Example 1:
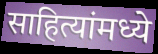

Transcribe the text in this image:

साहित्यांमध्ये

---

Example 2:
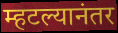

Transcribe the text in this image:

म्हटल्यानंतर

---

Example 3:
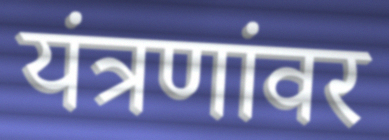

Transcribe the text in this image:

यंत्रणांवर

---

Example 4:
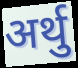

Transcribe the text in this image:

अर्थु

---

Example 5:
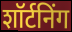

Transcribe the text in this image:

शॉर्टनिंग